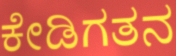
ಕೇಡಿಗತನ